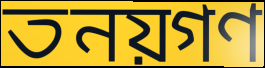
তনয়গণ